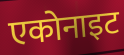
एकोनाइट